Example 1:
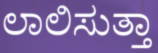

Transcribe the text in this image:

ಲಾಲಿಸುತ್ತಾ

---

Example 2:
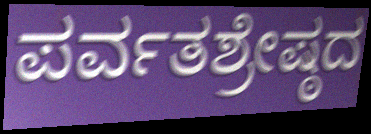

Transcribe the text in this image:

ಪರ್ವತಶ್ರೇಷ್ಠದ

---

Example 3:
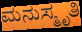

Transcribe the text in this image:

ಮನುಸ್ಮೃತಿ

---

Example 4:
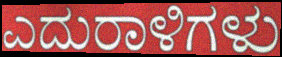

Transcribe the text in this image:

ಎದುರಾಳಿಗಳು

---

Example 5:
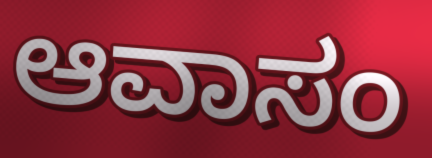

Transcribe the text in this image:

ಆವಾಸಂ